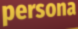
persona